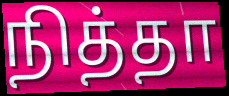
நித்தா